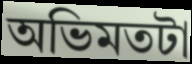
অভিমতটা